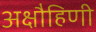
अक्षौहिणी